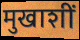
मुखाशीं